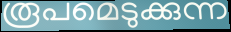
രൂപമെടുക്കുന്ന